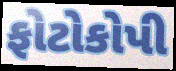
ફોટોકોપી